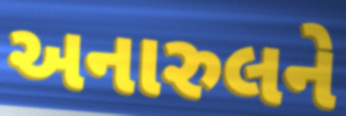
અનારુલને